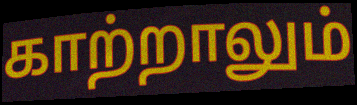
காற்றாலும்